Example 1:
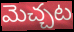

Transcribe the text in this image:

మెచ్చట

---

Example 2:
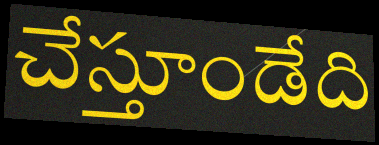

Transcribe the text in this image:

చేస్తూండేది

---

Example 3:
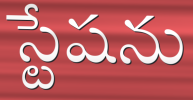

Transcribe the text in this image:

స్టేషను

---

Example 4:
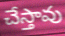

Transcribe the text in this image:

చేస్తావు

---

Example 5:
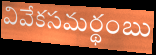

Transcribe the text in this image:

వివేకసమర్థంబు